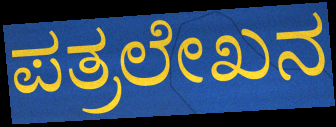
ಪತ್ರಲೇಖನ